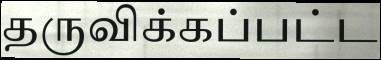
தருவிக்கப்பட்ட